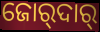
ଜୋର୍‍ଦାର୍